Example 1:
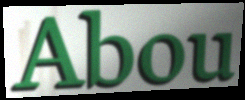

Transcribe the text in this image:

Abou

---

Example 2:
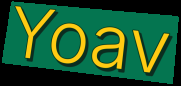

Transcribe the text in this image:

Yoav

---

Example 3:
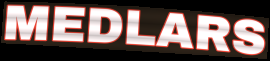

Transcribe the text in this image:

MEDLARS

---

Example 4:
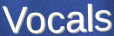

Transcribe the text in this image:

Vocals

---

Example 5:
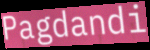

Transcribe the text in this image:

Pagdandi